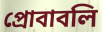
প্রোবাবলি